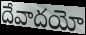
దేవాదయో